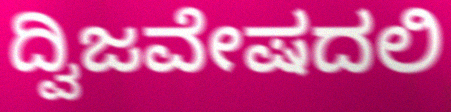
ದ್ವಿಜವೇಷದಲಿ